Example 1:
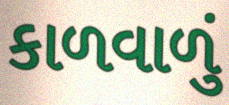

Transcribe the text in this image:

કાળવાળું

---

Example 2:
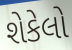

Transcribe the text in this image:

શેકેલો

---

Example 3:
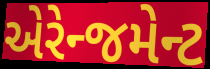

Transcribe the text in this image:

એરેન્જમેન્ટ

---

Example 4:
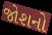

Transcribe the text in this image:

જોશનો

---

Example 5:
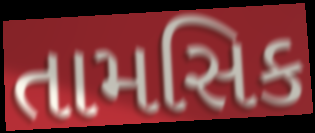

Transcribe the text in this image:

તામસિક